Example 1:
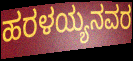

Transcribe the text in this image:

ಹರಳಯ್ಯನವರ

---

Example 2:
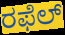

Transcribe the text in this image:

ರಫೆಲ್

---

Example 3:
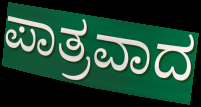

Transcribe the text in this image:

ಪಾತ್ರವಾದ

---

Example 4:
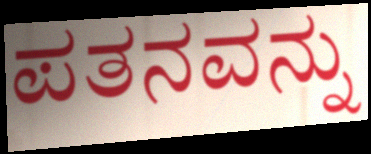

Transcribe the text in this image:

ಪತನವನ್ನು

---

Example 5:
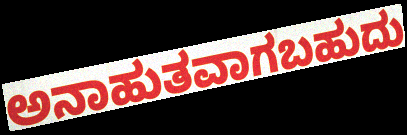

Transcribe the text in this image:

ಅನಾಹುತವಾಗಬಹುದು